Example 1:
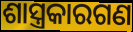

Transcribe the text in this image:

ଶାସ୍ତ୍ରକାରଗଣ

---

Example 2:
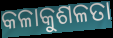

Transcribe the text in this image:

କଳାକୁଶଳତା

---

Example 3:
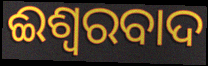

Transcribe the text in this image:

ଈଶ୍ୱରବାଦ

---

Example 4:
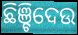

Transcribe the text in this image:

ଛିଞ୍ଚିଦେଉ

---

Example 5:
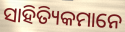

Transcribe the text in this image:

ସାହିତ୍ୟିକମାନେ